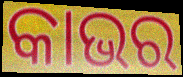
କାଭର